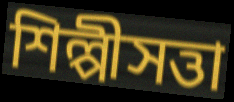
শিল্পীসত্তা